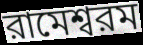
রামেশ্বরম